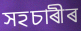
সহচাৰীৰ